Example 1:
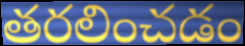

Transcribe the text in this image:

తరలించడం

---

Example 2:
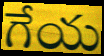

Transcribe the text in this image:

గేయ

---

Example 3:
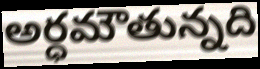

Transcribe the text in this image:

అర్ధమౌతున్నది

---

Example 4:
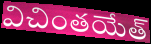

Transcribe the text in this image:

విచింతయేత్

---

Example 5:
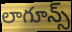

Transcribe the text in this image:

లాగూన్స్